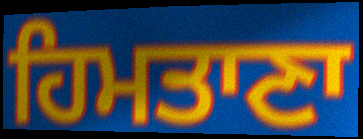
ਹਿਮਤਾਣਾ